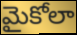
మైకోలా